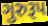
ગુરુરૂપ